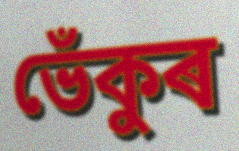
ভেঁকুৰ